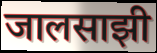
जालसाझी